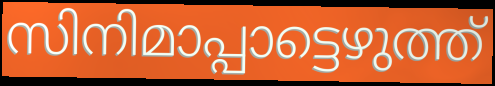
സിനിമാപ്പാട്ടെഴുത്ത്